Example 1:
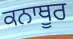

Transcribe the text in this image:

ਕਨਾਥੂਰ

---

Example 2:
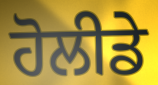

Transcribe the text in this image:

ਹੋਲੀਡੇ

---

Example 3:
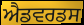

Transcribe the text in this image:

ਐਡਵਰਡਸ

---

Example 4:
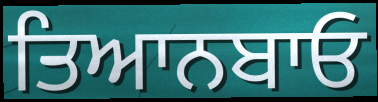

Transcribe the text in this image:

ਤਿਆਨਬਾਓ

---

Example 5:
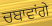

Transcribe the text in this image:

ਚਬਾਵਾਂਗੇ